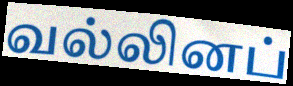
வல்லினப்